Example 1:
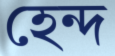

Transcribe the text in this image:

হেন্দ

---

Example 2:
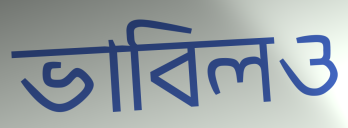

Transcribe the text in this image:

ভাবিলও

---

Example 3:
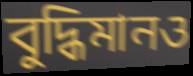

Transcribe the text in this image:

বুদ্ধিমানও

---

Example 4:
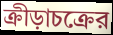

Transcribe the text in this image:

ক্রীড়াচক্রের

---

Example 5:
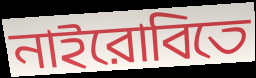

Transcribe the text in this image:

নাইরোবিতে